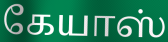
கேயாஸ்